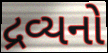
દ્રવ્યનો